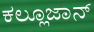
ಕಲ್ಲೂಜಾನ್